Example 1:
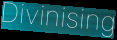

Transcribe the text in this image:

Divinising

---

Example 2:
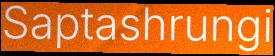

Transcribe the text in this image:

Saptashrungi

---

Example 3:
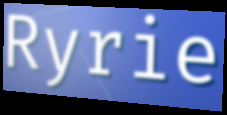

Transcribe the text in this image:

Ryrie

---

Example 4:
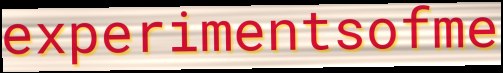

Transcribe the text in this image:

experimentsofme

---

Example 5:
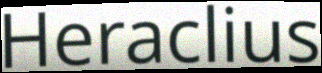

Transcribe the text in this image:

Heraclius